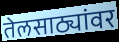
तेलसाठ्यांवर